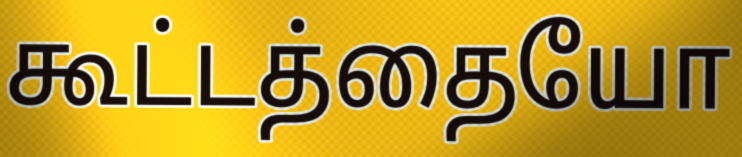
கூட்டத்தையோ